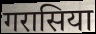
गरासिया